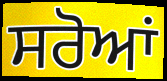
ਸਰੋਆਂ